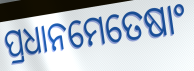
ପ୍ରଧାନମେତେଷାଂ